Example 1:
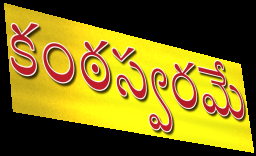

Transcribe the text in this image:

కంఠస్వరమే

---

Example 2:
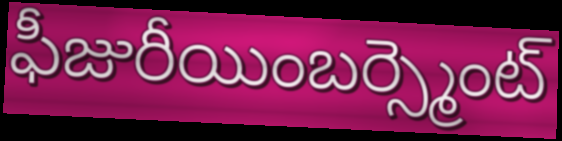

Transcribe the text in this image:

ఫీజురీయింబర్స్మెంట్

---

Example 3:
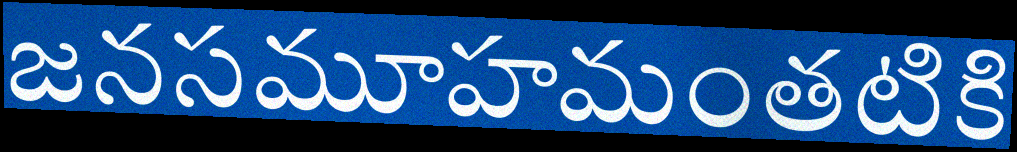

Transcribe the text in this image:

జనసమూహమంతటికి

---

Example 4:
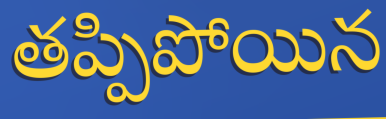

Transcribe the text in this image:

తప్పిపోయిన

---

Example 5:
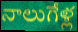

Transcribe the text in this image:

నాలుగేళ్ల